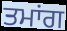
ਤਮਾਂਗ